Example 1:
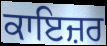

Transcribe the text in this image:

ਕਾਇਜ਼ਰ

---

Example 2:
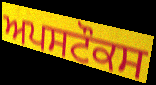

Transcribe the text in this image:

ਅਪਸਟੌਕਸ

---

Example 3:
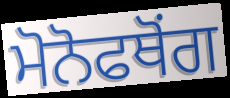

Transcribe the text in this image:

ਮੋਨੋਫਥੋਂਗ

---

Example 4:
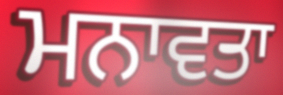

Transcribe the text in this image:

ਮਨਾਵਤਾ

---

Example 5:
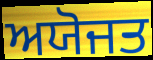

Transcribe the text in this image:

ਅਯੋਜਤ